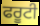
ਫਰੂਟੀ